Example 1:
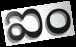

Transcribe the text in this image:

ఐం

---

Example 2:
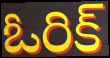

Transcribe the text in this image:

ఓరిక్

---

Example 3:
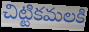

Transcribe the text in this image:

చిట్టికమలకి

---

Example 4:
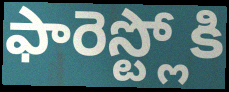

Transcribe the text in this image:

ఫారెస్ట్లోకి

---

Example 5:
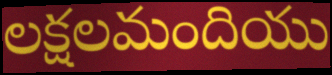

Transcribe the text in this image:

లక్షలమందియు